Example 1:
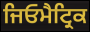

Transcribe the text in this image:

ਜਿਓਮੈਟ੍ਰਿਕ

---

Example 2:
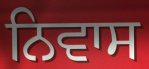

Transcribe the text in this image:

ਨਿਵਾਸ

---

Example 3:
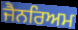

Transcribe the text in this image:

ਜੈਨਰਿਅਮ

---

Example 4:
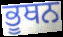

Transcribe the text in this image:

ਭੂਥਨ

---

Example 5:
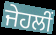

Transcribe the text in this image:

ਜੇਹਲੀਂ